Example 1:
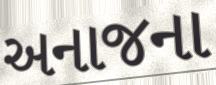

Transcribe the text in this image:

અનાજના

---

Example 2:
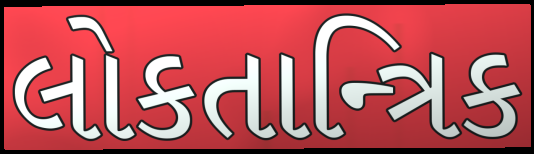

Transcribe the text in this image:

લોકતાન્ત્રિક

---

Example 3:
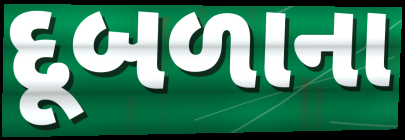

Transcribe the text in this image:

દૂબળાના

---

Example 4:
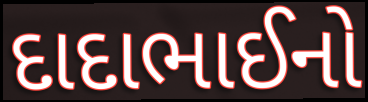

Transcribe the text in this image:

દાદાભાઈનો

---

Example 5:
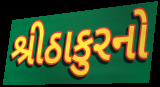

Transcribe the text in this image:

શ્રીઠાકુરનો